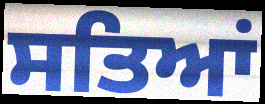
ਸਤਿਆਂ